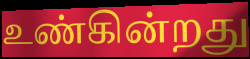
உண்கின்றது